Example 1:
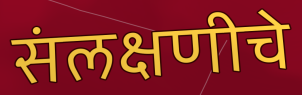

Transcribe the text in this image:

संलक्षणीचे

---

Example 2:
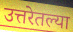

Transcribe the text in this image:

उत्तरेतल्या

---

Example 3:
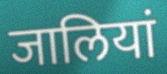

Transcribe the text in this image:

जालियां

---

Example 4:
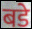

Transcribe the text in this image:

बडे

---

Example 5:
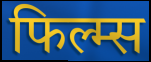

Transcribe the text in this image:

फिल्म्स